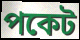
পকেট